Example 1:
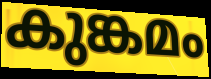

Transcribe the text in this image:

കുങ്കമം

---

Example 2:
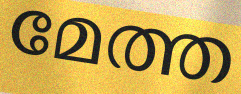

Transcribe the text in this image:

മേത്ത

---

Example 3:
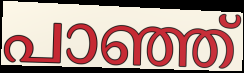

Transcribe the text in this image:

പാഞ്ഞ്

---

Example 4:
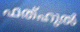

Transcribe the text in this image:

ഫത്ഹുൽ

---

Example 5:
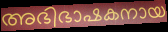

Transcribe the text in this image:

അഭിഭാഷകനായ